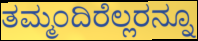
ತಮ್ಮಂದಿರೆಲ್ಲರನ್ನೂ